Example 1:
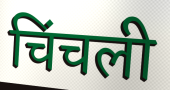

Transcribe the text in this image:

चिंचली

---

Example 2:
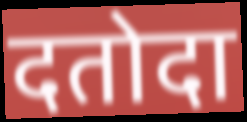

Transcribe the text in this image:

दतोदा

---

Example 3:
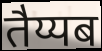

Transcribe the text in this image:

तैय्यब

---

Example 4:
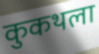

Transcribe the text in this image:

कुकथला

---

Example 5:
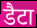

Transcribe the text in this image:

डैटा